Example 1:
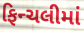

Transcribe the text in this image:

ફિન્ચલીમાં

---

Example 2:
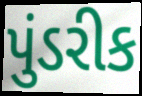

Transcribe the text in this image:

પુંડરીક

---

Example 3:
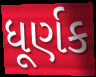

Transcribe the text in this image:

ધૂર્ણક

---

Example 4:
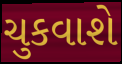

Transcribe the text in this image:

ચુકવાશે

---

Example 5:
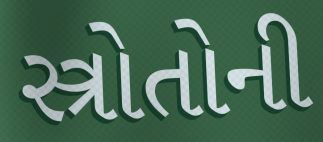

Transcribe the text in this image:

સ્ત્રોતોની